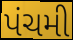
પંચમી